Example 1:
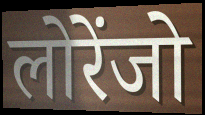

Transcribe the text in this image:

लोरेंजो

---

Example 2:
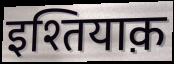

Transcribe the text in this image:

इश्तियाक़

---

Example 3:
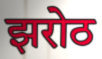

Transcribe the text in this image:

झरोठ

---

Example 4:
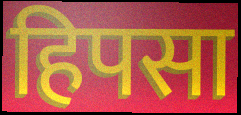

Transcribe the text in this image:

हिपसा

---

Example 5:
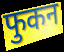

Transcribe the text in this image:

फुकन